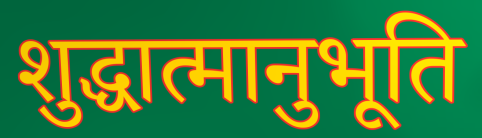
शुद्धात्मानुभूति